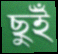
ছুইঁ